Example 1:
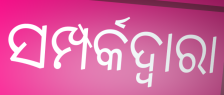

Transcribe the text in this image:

ସମ୍ପର୍କଦ୍ୱାରା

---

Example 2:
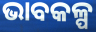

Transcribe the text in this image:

ଭାବକଳ୍ପ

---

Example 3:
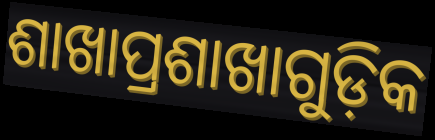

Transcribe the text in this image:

ଶାଖାପ୍ରଶାଖାଗୁଡ଼ିକ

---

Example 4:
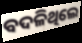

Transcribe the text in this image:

ବଦଳିଥିଲେ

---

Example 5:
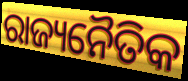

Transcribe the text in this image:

ରାଜ୍ୟନୈତିକ